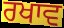
ਰਖਾਵ